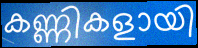
കണ്ണികളായി